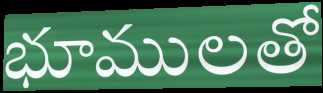
భూములతో